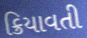
ક્રિયાવતી